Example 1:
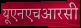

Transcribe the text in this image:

यूएनएचआरसी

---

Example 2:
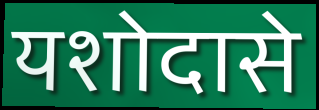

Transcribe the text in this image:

यशोदासे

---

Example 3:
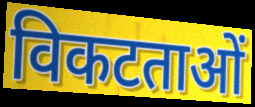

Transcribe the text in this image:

विकटताओं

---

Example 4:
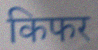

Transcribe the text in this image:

किफर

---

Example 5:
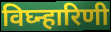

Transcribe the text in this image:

विघ्न्हारिणी